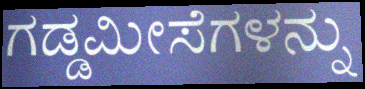
ಗಡ್ಡಮೀಸೆಗಳನ್ನು